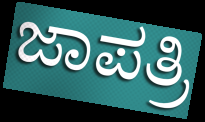
ಜಾಪತ್ರಿ